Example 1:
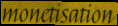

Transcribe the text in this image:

monetisation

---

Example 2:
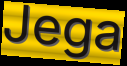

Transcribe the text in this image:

Jega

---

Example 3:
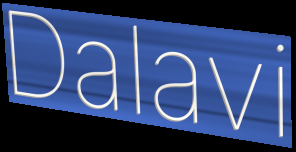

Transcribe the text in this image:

Dalavi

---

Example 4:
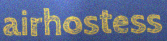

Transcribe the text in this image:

airhostess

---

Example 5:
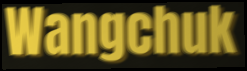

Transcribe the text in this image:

Wangchuk